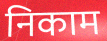
निकाम